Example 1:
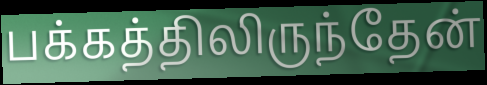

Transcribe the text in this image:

பக்கத்திலிருந்தேன்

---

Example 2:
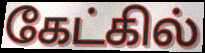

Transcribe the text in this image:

கேட்கில்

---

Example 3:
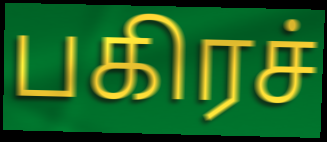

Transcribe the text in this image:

பகிரச்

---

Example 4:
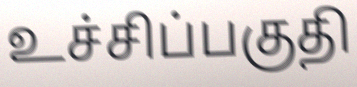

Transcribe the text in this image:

உச்சிப்பகுதி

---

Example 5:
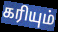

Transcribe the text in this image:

கரியும்